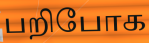
பறிபோக